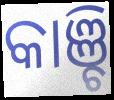
କାଞ୍ଚି